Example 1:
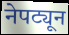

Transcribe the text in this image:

नेपट्यून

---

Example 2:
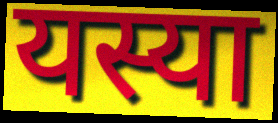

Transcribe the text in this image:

यस्या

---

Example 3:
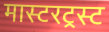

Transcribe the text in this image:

मास्टरट्रस्ट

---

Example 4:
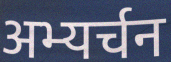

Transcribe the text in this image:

अभ्यर्चन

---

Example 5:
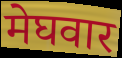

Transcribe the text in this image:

मेघवार